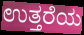
ಉತ್ತರೆಯ